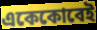
একেকোবেই